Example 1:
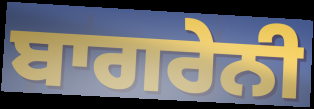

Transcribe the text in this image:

ਬਾਗਰੇਨੀ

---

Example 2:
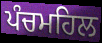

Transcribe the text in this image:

ਪੰਚਮਹਿਲ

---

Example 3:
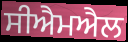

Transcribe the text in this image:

ਸੀਐਮਐਲ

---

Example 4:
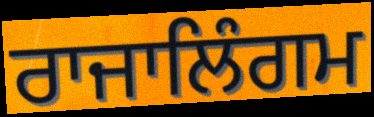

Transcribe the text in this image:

ਰਾਜਾਲਿੰਗਮ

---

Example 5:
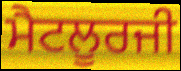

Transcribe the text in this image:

ਮੈਟਲੂਰਜੀ